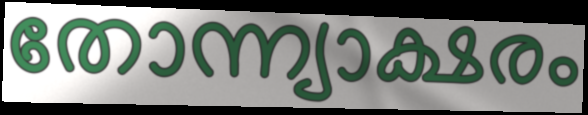
തോന്ന്യാക്ഷരം